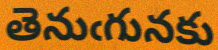
తెనుఁగునకు